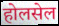
होलसेल